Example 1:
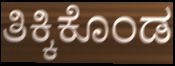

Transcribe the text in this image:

ತಿಕ್ಕಿಕೊಂಡ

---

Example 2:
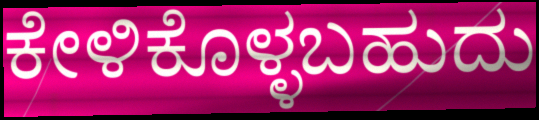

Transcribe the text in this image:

ಕೇಳಿಕೊಳ್ಳಬಹುದು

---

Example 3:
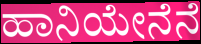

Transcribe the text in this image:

ಹಾನಿಯೇನೆನೆ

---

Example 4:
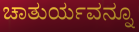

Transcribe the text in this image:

ಚಾತುರ್ಯವನ್ನೂ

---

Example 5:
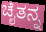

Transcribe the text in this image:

ಚೈತನ್ನ